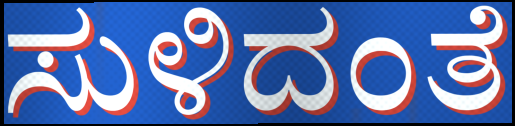
ಸುಳಿದಂತೆ